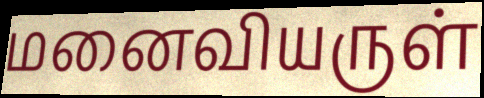
மனைவியருள்